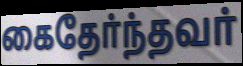
கைதேர்ந்தவர்